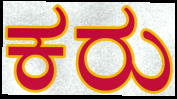
ಕರು